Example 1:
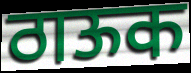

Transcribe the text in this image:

ठाऊक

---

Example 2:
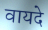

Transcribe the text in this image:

वायदे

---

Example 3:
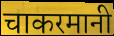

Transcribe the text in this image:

चाकरमानी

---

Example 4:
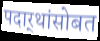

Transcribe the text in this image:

पदार्थांसोबत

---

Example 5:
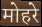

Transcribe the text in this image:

मोहरे